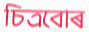
চিত্ৰবোৰ